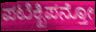
ಪಟಿಕ್ಖಿಪನ್ತೋ